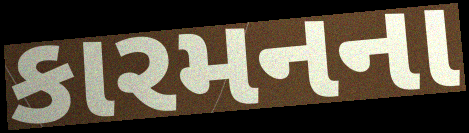
કારમનના